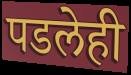
पडलेही